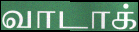
வாடாக்